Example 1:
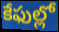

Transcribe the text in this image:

కేఫుల్లో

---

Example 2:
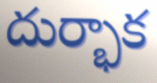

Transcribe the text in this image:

దుర్భాక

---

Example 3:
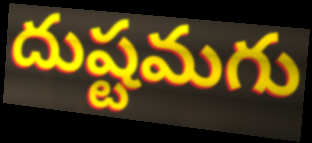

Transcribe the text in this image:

దుష్టమగు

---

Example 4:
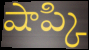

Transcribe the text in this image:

షాప్కి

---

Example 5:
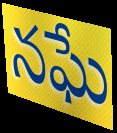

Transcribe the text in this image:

నఘే